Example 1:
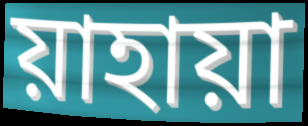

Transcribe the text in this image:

য়াহায়া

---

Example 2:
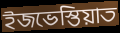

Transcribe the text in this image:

ইজভেস্তিয়াত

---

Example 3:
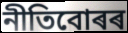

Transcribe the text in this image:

নীতিবোৰৰ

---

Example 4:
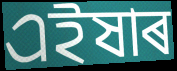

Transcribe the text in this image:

এইষাৰ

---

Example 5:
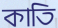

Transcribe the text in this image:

কাতি